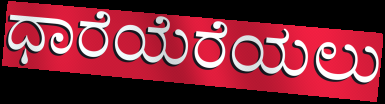
ಧಾರೆಯೆರೆಯಲು